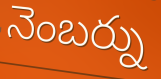
నెంబర్ను